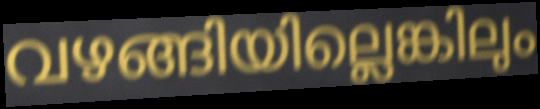
വഴങ്ങിയില്ലെങ്കിലും